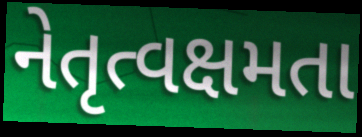
નેતૃત્વક્ષમતા